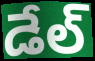
డేల్